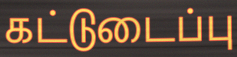
கட்டுடைப்பு